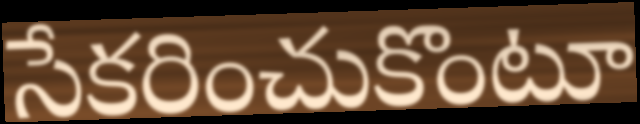
సేకరించుకొంటూ